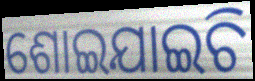
ଶୋଇଯାଇଚି